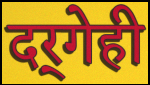
दर्गेही